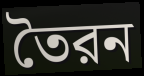
তৈরন